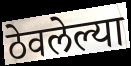
ठेवलेल्या